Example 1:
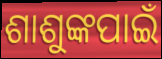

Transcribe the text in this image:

ଶାଶୁଙ୍କପାଇଁ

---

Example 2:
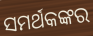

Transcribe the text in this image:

ସମର୍ଥକଙ୍କର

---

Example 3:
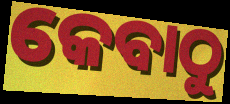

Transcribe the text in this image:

କେବାଠୁ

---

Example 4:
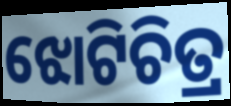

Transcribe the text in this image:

ଝୋଟିଚିତ୍ର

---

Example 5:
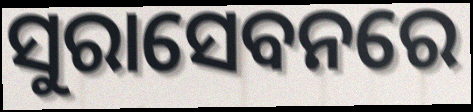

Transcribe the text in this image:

ସୁରାସେବନରେ